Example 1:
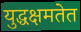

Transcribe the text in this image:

युद्धक्षमतेत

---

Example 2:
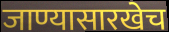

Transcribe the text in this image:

जाण्यासारखेच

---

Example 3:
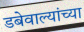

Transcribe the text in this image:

डबेवाल्यांच्या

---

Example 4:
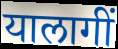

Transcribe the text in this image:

यालागीं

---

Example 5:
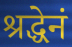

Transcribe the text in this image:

श्रद्धेनं